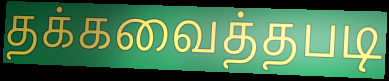
தக்கவைத்தபடி